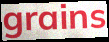
grains